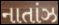
નાતાંઝ